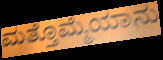
ಮತ್ತೊಮ್ಮೆಯಾನು